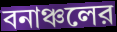
বনাঞ্চলের